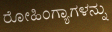
ರೋಹಿಂಗ್ಯಾಗಳನ್ನು